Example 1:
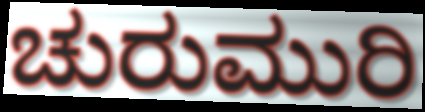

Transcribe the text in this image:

ಚುರುಮುರಿ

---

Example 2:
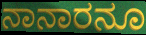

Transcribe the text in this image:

ನಾನಾರನೂ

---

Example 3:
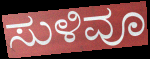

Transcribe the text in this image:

ಸುಳಿವೂ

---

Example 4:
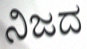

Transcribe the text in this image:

ನಿಜದ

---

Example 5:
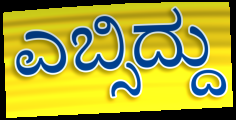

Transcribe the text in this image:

ಎಬ್ಸಿದ್ದು